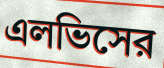
এলভিসের